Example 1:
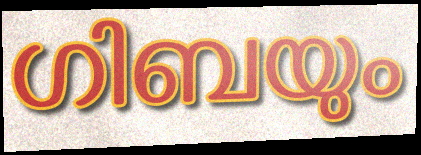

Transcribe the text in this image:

ഗിബയും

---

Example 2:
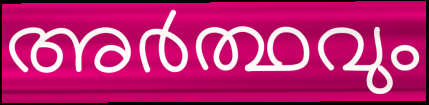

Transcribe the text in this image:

അർത്ഥവും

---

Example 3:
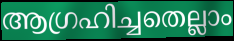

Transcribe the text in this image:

ആഗ്രഹിച്ചതെല്ലാം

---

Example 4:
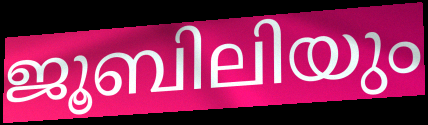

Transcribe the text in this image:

ജൂബിലിയും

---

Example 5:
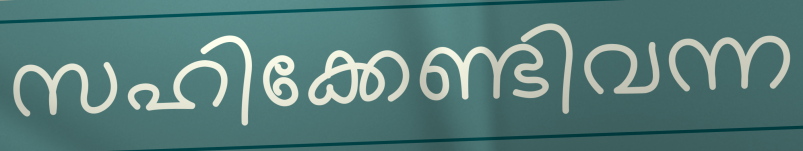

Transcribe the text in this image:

സഹിക്കേണ്ടിവന്ന